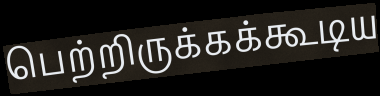
பெற்றிருக்கக்கூடிய